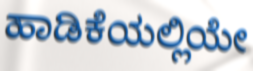
ಹಾಡಿಕೆಯಲ್ಲಿಯೇ